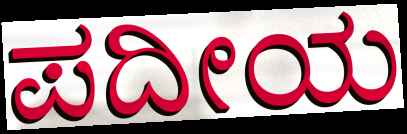
ಪದೀಯ